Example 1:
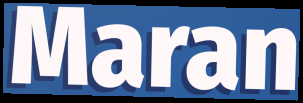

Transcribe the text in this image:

Maran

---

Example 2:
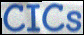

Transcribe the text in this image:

CICs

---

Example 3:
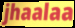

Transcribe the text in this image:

jhaalaa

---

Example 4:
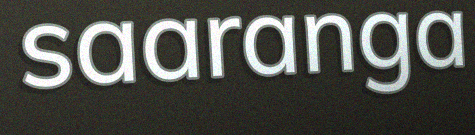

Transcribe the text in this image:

saaranga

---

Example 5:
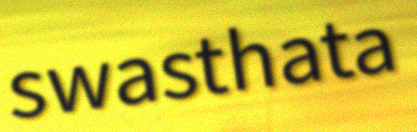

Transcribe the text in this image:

swasthata